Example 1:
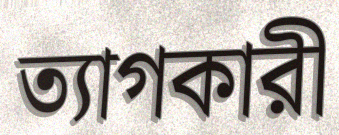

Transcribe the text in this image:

ত্যাগকারী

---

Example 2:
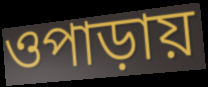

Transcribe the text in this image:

ওপাড়ায়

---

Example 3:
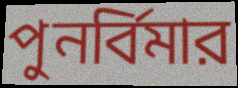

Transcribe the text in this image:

পুনর্বিমার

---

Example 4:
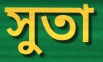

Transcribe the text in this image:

সুতা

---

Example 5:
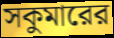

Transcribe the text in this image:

সকুমারের